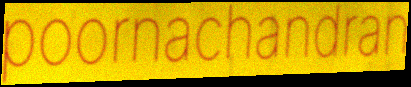
poornachandran